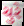
ચુરે